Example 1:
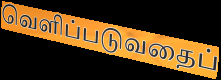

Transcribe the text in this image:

வெளிப்படுவதைப்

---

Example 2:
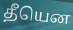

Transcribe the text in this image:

தீயென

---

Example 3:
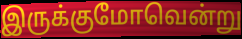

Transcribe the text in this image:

இருக்குமோவென்று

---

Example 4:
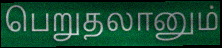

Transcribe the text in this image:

பெறுதலானும்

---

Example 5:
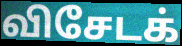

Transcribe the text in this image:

விசேடக்